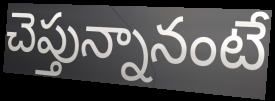
చెప్తున్నానంటే